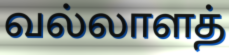
வல்லாளத்